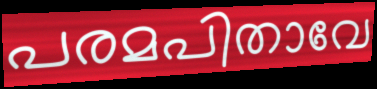
പരമപിതാവേ